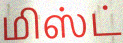
மிஸ்ட்